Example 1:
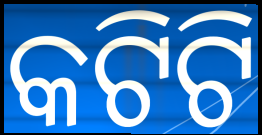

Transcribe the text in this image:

କଟିଟି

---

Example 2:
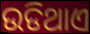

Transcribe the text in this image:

ଉଡିଥାଏ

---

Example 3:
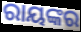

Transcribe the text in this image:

ରାୟଙ୍କର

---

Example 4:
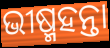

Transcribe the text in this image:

ଭୀଷ୍ମହନ୍ତା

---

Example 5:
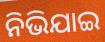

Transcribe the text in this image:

ନିଭିଯାଇ